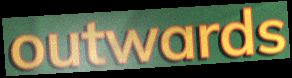
outwards